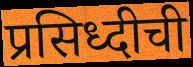
प्रसिध्दीची